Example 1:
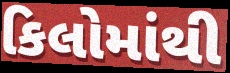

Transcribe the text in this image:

કિલોમાંથી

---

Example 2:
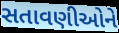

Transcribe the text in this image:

સતાવણીઓને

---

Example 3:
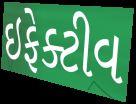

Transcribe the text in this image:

ઇફેક્ટીવ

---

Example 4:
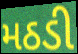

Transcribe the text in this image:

મઠડી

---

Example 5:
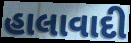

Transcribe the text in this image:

હાલાવાદી